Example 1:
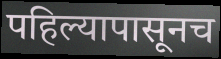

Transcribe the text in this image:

पहिल्यापासूनच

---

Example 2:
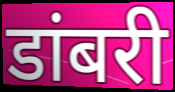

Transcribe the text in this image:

डांबरी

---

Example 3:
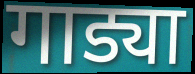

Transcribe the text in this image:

गाड्या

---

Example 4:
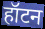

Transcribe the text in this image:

हॉटन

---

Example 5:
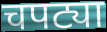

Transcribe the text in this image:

चपट्या